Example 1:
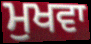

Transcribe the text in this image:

ਮੁਖਵਾ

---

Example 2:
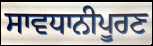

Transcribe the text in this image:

ਸਾਵਧਾਨੀਪੂਰਣ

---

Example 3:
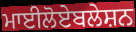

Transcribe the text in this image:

ਮਾਈਲੋਏਬਲੇਸ਼ਨ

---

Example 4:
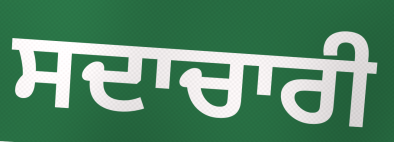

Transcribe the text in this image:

ਸਦਾਚਾਰੀ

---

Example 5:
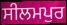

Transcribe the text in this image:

ਸੀਲਮਪੁਰ